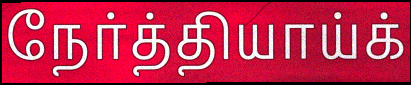
நேர்த்தியாய்க்